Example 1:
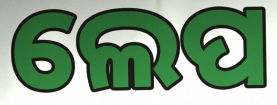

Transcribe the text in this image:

ଲେପ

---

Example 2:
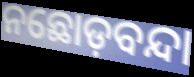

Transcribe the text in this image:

ନଛୋଡ଼ବନ୍ଦା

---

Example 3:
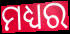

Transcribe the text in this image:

ମଧ୍ଯର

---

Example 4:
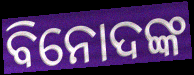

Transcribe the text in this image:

ବିନୋଦଙ୍କ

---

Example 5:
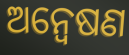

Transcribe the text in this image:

ଅନ୍ବେଷଣ